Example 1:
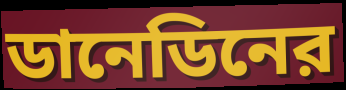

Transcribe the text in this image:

ডানেডিনের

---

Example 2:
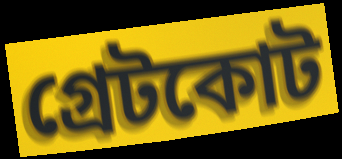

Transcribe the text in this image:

গ্রেটকোট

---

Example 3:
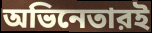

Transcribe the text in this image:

অভিনেতারই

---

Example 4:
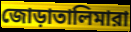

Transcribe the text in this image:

জোড়াতালিমারা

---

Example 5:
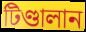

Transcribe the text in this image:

টিণ্ডালান